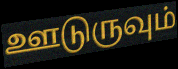
ஊடுருவும்